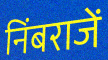
निंबराजें